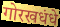
गोरखधंधे